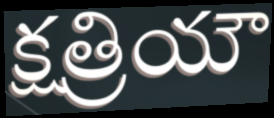
క్షత్రియౌ